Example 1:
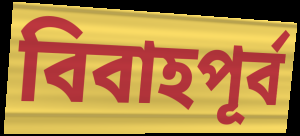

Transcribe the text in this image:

বিবাহপূর্ব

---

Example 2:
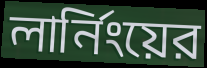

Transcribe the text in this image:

লার্নিংয়ের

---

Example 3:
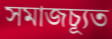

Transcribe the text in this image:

সমাজচ্যূত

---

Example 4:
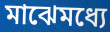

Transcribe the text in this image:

মাঝেমধ্যে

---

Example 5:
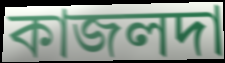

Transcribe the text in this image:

কাজলদা